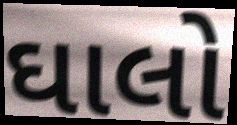
ઘાલો